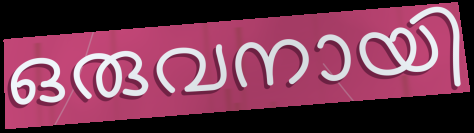
ഒരുവനായി